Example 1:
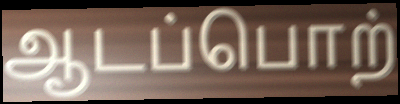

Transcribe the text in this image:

ஆடப்பொற்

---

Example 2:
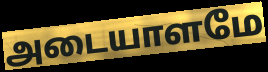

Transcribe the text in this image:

அடையாளமே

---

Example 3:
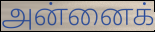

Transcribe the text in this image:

அன்னைக்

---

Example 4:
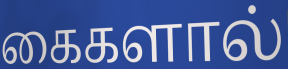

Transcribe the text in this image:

கைகளால்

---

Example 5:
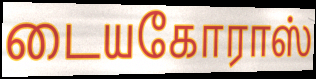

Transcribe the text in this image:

டையகோராஸ்